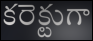
కరెక్టుగా